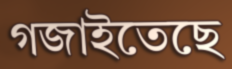
গজাইতেছে